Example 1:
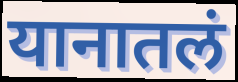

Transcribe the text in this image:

यानातलं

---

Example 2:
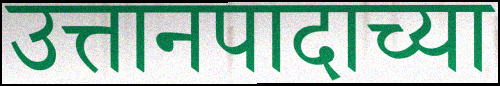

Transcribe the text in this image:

उत्तानपादाच्या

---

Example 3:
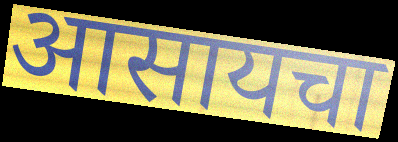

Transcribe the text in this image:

आसायचा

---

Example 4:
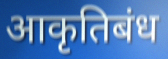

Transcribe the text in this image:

आकृतिबंध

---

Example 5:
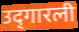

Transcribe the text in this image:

उद्‌गारली